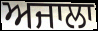
ਅਜਾਲਾ